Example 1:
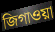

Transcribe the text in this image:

জিগাওয়া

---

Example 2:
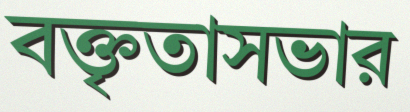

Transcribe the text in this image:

বক্তৃতাসভার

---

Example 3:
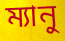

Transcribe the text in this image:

ম্যানু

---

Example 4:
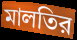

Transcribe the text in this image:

মালতির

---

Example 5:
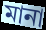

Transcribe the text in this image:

মানা